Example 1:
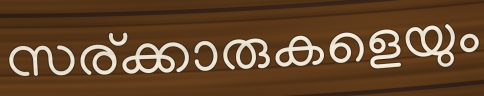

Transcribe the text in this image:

സര്ക്കാരുകളെയും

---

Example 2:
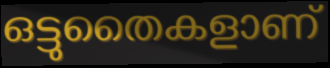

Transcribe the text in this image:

ഒട്ടുതൈകളാണ്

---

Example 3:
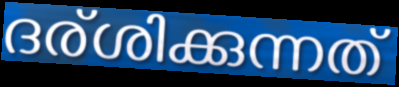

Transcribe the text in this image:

ദര്ശിക്കുന്നത്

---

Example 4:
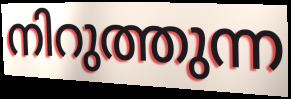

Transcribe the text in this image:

നിറുത്തുന്ന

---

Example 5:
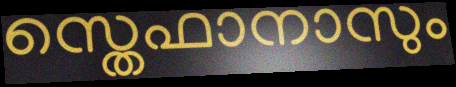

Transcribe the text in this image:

സ്തെഫാനാസും